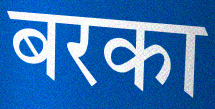
बरका